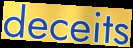
deceits